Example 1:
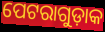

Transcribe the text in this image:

ପେଟରାଗୁଡ଼ାକ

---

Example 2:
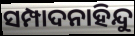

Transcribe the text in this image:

ସମ୍ପାଦନାହିନ୍ଦୁ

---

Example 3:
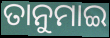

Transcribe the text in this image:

ତାନୁମାଇ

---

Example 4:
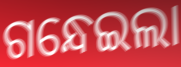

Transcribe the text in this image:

ଗନ୍ଧେଇଲା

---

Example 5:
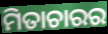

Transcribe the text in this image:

ମିତାଚାରର